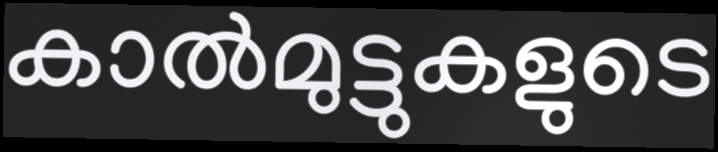
കാൽമുട്ടുകളുടെ